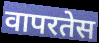
वापरतेस